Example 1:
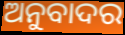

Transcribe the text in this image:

ଅନୁବାଦର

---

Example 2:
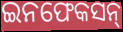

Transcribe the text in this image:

ଇନଫେକସନ୍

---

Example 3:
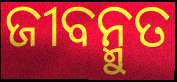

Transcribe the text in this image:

ଜୀବନ୍ମୁତ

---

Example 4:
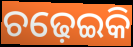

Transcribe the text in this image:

ଚଢ଼େଇକି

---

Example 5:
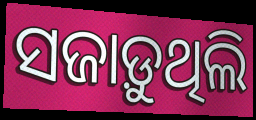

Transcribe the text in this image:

ସଜାଡ଼ୁଥିଲି